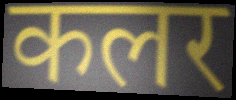
कलर